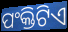
ପଂକ୍ତିଟିଏ